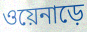
ওয়েনাড়ে